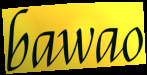
bawao